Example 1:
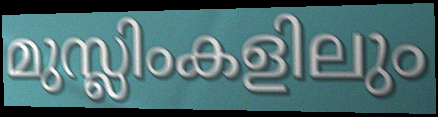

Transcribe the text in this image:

മുസ്ലിംകളിലും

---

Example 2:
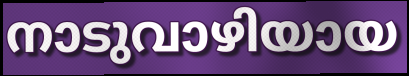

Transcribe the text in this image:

നാടുവാഴിയായ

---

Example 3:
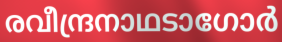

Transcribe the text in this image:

രവീന്ദ്രനാഥടാഗോർ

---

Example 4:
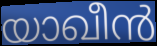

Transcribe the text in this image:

യാഖീൻ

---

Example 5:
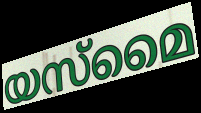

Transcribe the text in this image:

യസ്മൈ